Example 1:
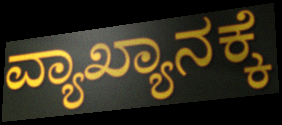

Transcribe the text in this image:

ವ್ಯಾಖ್ಯಾನಕ್ಕೆ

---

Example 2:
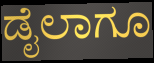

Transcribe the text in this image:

ಡೈಲಾಗೂ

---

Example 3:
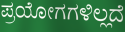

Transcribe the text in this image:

ಪ್ರಯೋಗಗಳಿಲ್ಲದೆ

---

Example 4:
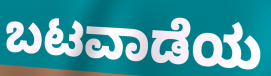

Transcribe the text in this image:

ಬಟವಾಡೆಯ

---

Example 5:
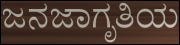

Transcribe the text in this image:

ಜನಜಾಗೃತಿಯ